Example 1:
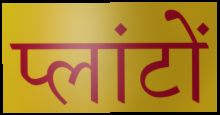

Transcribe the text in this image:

प्लांटों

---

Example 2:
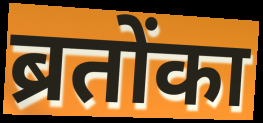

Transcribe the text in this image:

ब्रतोंका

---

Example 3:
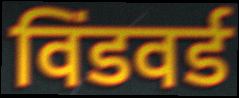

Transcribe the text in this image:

विंडवर्ड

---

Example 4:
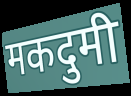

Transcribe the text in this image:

मकदुमी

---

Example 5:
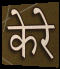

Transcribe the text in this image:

केरे